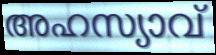
അഹസ്യാവ്